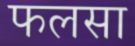
फलसा